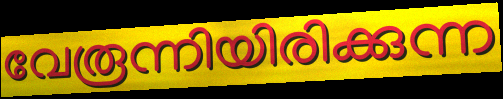
വേരൂന്നിയിരിക്കുന്ന